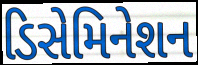
ડિસેમિનેશન